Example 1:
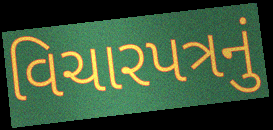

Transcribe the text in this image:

વિચારપત્રનું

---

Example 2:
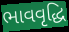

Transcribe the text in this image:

ભાવવૃદ્ધિ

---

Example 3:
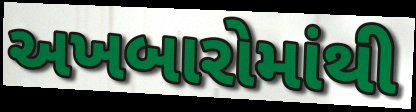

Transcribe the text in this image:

અખબારોમાંથી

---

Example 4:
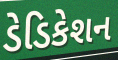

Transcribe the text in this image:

ડેડિકેશન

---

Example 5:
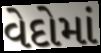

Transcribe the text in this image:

વેદોમાં